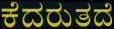
ಕೆದರುತದೆ